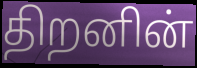
திறனின்